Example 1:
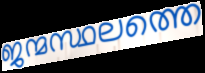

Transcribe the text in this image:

ജന്മസ്ഥലത്തെ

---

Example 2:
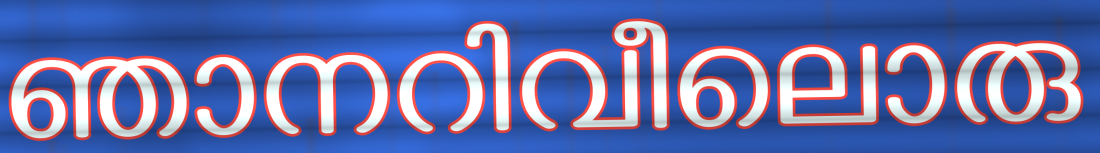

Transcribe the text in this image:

ഞാനറിവീലൊരു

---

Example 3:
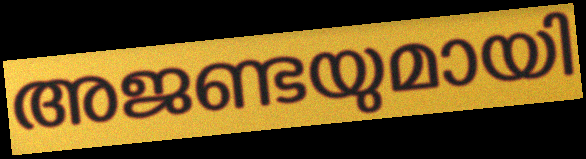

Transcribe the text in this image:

അജണ്ടയുമായി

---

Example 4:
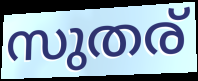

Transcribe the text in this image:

സുതര്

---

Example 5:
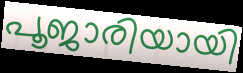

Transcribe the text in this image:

പൂജാരിയായി